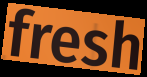
fresh